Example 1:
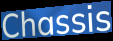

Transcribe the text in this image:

Chassis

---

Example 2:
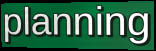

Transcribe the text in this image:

planning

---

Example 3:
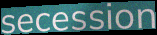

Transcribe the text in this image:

secession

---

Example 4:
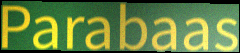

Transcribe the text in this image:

Parabaas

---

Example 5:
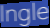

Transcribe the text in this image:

Ingle